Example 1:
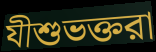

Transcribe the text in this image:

যীশুভক্তরা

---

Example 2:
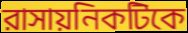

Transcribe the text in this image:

রাসায়নিকটিকে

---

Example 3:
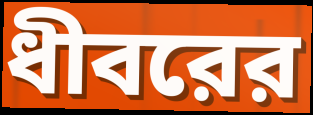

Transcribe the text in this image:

ধীবরের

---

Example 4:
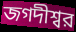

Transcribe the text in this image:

জগদীশ্বর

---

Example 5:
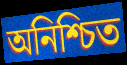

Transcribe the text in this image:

অনিশ্চিত